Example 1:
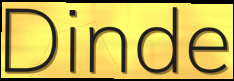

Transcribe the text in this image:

Dinde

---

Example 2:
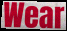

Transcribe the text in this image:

Wear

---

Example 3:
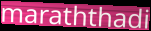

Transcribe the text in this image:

maraththadi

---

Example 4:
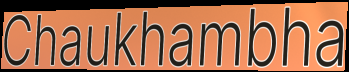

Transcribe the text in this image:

Chaukhambha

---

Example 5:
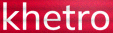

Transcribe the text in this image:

khetro